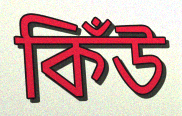
কিঁউ